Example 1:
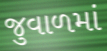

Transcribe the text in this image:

જુવાળમાં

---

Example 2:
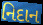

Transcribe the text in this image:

નિદાન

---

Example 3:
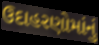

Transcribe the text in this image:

ઉદાહરણોમાંનું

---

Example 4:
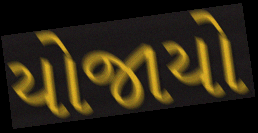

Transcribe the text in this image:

યોજાયો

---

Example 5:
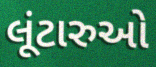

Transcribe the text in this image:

લૂંટારુઓ